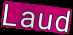
Laud